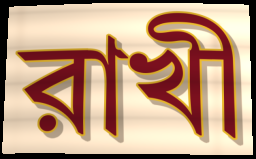
রাখী